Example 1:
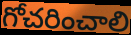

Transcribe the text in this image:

గోచరించాలి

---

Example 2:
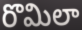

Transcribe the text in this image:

రొమిలా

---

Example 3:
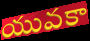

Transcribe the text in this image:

యువకా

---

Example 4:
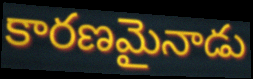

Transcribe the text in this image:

కారణమైనాడు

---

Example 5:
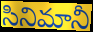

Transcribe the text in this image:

సినిమానీ